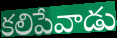
కలిపేవాడు